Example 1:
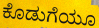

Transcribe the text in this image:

ಕೊಡುಗೆಯೂ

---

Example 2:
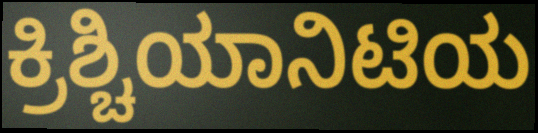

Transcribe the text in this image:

ಕ್ರಿಶ್ಚಿಯಾನಿಟಿಯ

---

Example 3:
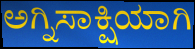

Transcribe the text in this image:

ಅಗ್ನಿಸಾಕ್ಷಿಯಾಗಿ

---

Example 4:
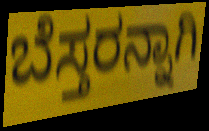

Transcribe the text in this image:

ಬೆಸ್ತರನ್ನಾಗಿ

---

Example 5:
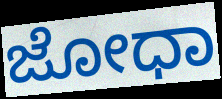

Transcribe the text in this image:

ಜೋಧಾ